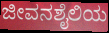
ಜೀವನಶೈಲಿಯ